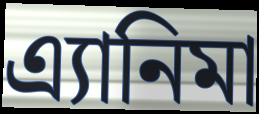
এ্যানিমা